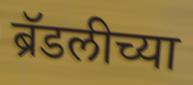
ब्रॅडलीच्या